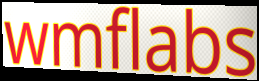
wmflabs